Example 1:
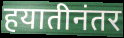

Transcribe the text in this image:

हयातीनंतर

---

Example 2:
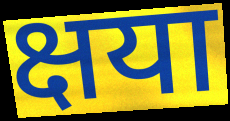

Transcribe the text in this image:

क्षया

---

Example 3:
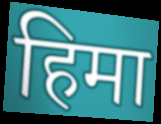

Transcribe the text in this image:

हिमा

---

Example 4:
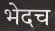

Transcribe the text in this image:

भेदच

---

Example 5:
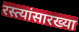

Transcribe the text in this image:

रस्त्यांसारख्या